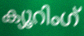
ക്യൂറിംഗ്